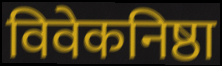
विवेकनिष्ठा